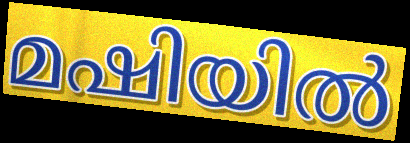
മഷിയിൽ